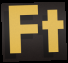
Ft